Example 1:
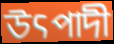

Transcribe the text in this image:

উৎপাদী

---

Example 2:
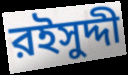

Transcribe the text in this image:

রইসুদ্দী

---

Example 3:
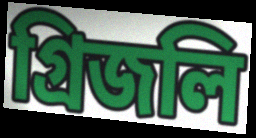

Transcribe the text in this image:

গ্রিজলি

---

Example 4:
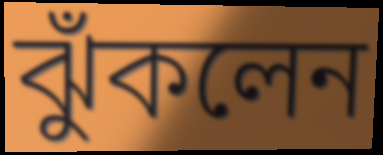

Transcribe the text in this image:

ঝুঁকলেন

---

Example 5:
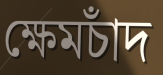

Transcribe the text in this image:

ক্ষেমচাঁদ